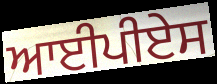
ਆਈਪੀਏਸ